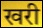
खरी